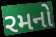
રમનો